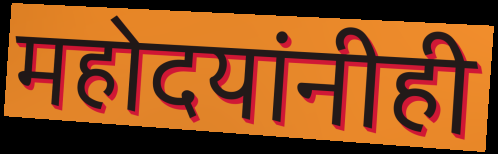
महोदयांनीही